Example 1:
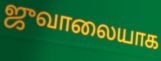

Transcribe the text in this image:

ஜுவாலையாக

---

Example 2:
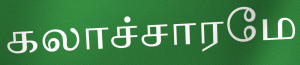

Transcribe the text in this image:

கலாச்சாரமே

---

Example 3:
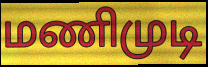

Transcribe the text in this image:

மணிமுடி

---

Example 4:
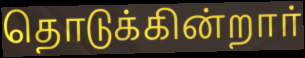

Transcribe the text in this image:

தொடுக்கின்றார்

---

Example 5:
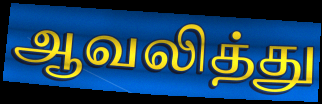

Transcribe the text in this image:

ஆவலித்து